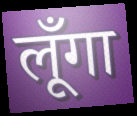
लूँगा